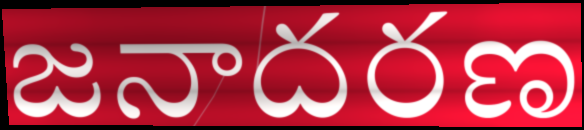
జనాదరణ